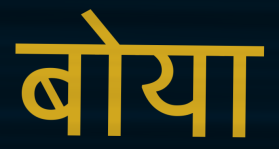
बोया